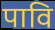
पावि